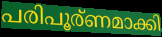
പരിപൂര്ണമാക്കി